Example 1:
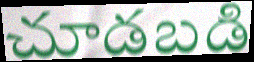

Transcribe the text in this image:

చూడబడి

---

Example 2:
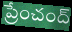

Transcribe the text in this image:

ప్రేంచంద్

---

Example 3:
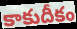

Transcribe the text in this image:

కాకుదీకం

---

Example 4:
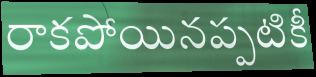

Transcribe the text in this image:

రాకపోయినప్పటికీ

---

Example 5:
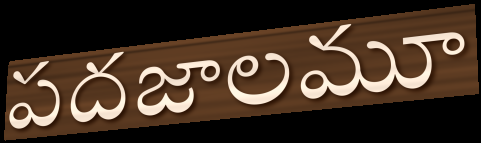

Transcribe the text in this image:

పదజాలమూ